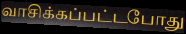
வாசிக்கப்பட்டபோது